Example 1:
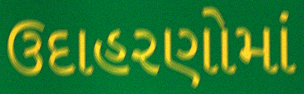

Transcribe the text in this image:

ઉદાહરણોમાં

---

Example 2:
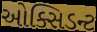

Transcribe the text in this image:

ઓક્સિડન્ટ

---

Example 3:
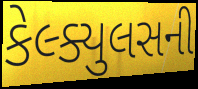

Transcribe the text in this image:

કેલ્ક્યુલસની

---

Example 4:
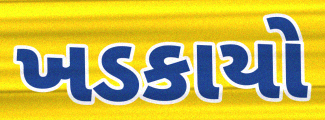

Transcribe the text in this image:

ખડકાયો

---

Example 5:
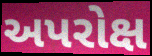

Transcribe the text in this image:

અપરોક્ષ